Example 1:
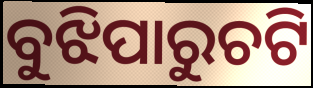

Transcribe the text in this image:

ବୁଝିପାରୁଚଟି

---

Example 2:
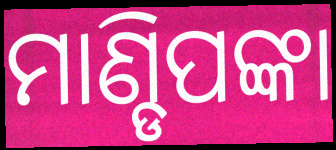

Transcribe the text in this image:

ମାଣ୍ଡିପଙ୍କା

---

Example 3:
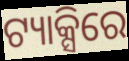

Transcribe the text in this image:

ଟ୍ୟାକ୍ସିରେ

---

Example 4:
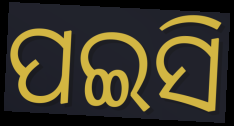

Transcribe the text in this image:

ପଇସି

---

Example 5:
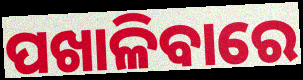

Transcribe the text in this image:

ପଖାଳିବାରେ